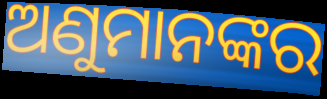
ଅଣୁମାନଙ୍କର